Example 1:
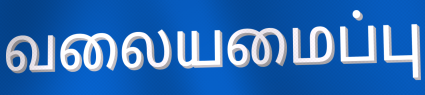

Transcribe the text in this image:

வலையமைப்பு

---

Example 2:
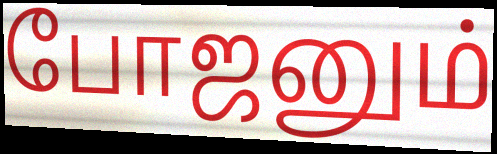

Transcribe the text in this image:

போஜனும்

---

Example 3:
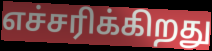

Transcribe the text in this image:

எச்சரிக்கிறது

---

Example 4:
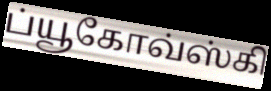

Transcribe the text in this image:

ப்யூகோவ்ஸ்கி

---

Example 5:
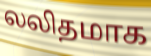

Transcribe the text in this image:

லலிதமாக